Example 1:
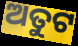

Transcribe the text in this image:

ଅତୁଟ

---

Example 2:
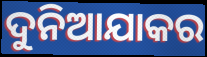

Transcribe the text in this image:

ଦୁନିଆଯାକର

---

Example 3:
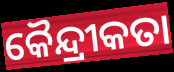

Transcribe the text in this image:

କୈନ୍ଦ୍ରୀକତା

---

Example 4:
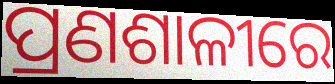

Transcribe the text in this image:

ପ୍ରଣଶାଳୀରେ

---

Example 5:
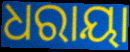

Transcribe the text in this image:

ଧରାୟା